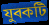
যুবকটি